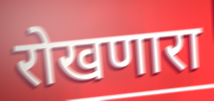
रोखणारा